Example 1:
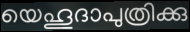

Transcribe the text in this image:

യെഹൂദാപുത്രിക്കു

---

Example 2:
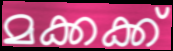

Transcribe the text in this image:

മക്കക്ക്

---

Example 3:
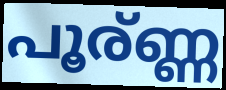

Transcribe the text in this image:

പൂര്ണ്ണ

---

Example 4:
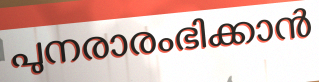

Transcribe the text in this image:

പുനരാരംഭിക്കാൻ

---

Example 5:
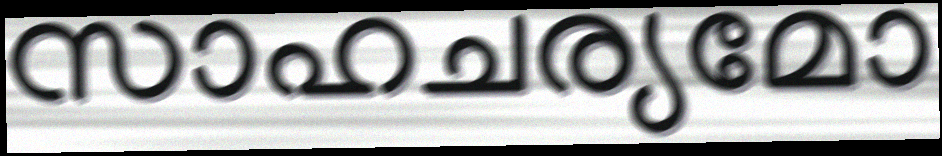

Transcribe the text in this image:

സാഹചര്യമോ